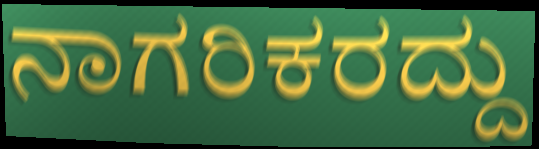
ನಾಗರಿಕರದ್ದು